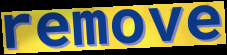
remove